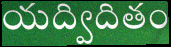
యద్విదితం